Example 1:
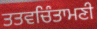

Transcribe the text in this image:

ਤਤਵਚਿੰਤਾਮਣੀ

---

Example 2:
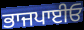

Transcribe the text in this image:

ਭਾਜਪਾਈਓ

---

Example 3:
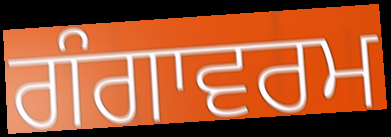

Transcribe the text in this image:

ਗੰਗਾਵਰਮ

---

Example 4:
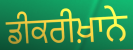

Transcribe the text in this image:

ਡੀਕਰੀਖ਼ਾਨੇ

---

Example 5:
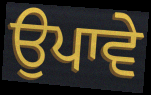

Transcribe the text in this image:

ਉਪਾਵੇ